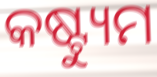
କଷ୍ଟ୍ୟୁମ